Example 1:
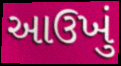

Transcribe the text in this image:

આઉખું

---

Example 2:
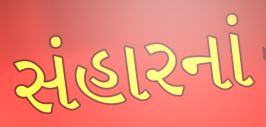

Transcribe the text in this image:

સંહારનાં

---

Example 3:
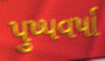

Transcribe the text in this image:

પુષ્પવર્ષા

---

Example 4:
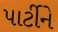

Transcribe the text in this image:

પાર્ટીને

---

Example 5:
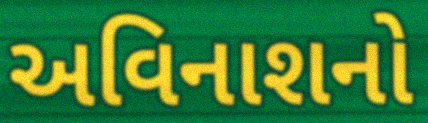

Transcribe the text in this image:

અવિનાશનો